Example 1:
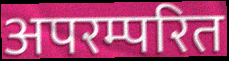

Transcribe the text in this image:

अपरम्परित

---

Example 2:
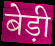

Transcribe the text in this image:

बेड़ी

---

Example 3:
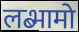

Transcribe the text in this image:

लब्भामो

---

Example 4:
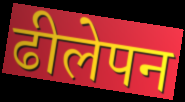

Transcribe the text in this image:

ढीलेपन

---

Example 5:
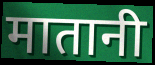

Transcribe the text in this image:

मातानी